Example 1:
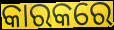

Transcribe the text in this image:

କାରକରେ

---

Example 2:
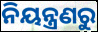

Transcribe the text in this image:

ନିୟନ୍ତ୍ରଣରୁ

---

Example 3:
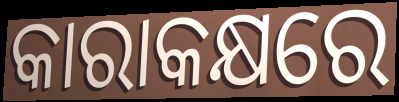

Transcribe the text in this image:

କାରାକକ୍ଷରେ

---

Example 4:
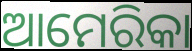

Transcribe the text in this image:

ଆମେରିକା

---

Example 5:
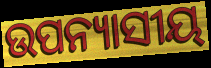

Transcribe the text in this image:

ଉପନ୍ୟାସୀୟ